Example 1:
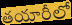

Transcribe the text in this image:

తయారీలో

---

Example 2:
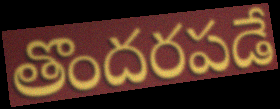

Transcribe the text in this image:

తొందరపడే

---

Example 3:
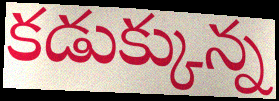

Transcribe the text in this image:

కడుక్కున్న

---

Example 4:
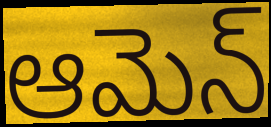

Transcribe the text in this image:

ఆమెన్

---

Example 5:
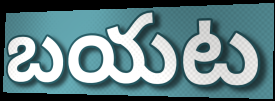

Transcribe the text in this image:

బయట